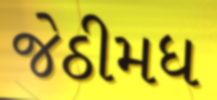
જેઠીમધ